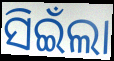
ସିଇଁଲା